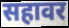
सहावर